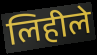
लिहीले